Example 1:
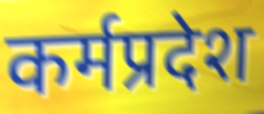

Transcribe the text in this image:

कर्मप्रदेश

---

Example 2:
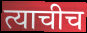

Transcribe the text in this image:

त्याचीच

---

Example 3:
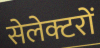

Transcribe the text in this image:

सेलेक्टरों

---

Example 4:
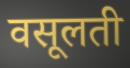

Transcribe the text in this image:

वसूलती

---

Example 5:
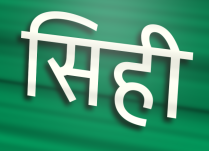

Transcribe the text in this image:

सिही